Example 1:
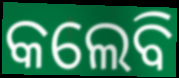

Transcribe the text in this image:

କଲେବି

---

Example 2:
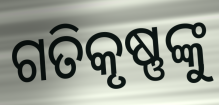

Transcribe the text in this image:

ଗତିକୃଷ୍ଣଙ୍କୁ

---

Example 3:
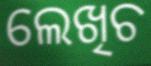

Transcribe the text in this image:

ଲେଖିଚ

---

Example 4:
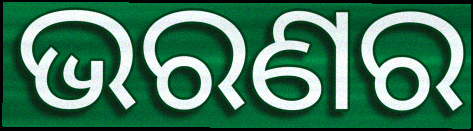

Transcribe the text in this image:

ଭରଣର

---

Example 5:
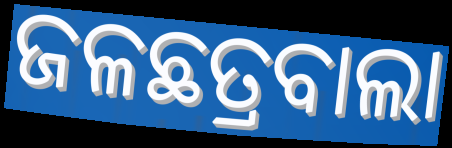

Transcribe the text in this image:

ଜଳଛତ୍ରବାଲା